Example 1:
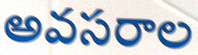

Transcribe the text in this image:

అవసరాల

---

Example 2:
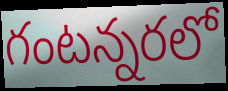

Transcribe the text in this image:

గంటన్నరలో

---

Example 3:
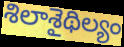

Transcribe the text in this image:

శిలాశైథిల్యం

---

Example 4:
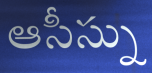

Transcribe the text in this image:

ఆసీస్ను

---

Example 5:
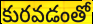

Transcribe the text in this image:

కురవడంతో